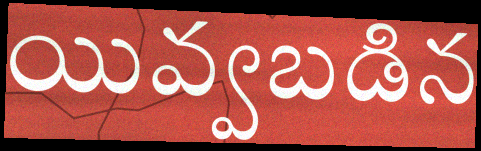
యివ్వబడిన